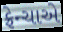
ફ્રેન્ચાએ